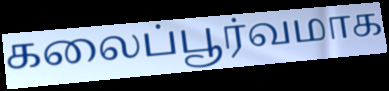
கலைப்பூர்வமாக